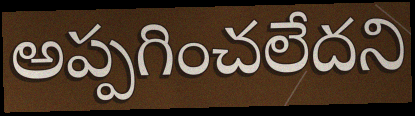
అప్పగించలేదని